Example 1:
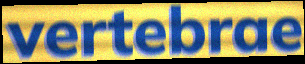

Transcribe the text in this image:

vertebrae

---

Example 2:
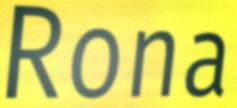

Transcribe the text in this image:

Rona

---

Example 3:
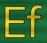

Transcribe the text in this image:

Ef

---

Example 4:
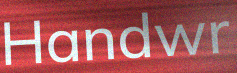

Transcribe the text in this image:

Handwr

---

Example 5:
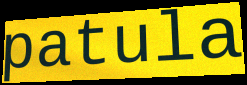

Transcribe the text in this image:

patula